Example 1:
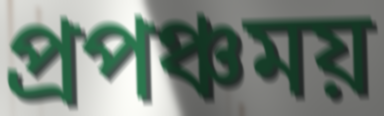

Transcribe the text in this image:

প্রপঞ্চময়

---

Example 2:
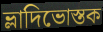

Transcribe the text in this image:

ভ্লাদিভোস্তক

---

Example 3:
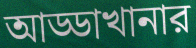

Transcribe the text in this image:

আড্ডাখানার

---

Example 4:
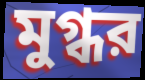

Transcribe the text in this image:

মুগ্ধর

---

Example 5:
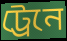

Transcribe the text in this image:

ট্রেনে